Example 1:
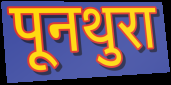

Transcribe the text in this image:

पूनथुरा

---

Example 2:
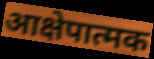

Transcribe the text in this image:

आक्षेपात्मक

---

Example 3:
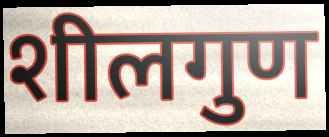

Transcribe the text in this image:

शीलगुण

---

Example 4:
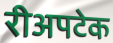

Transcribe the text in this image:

रीअपटेक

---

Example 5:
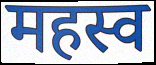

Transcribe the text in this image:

महस्व